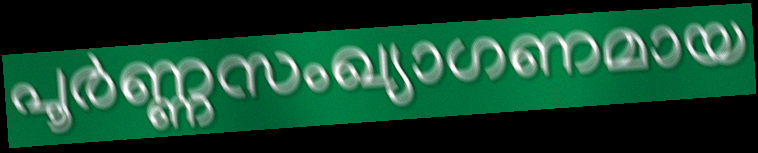
പൂർണ്ണസംഖ്യാഗണമായ